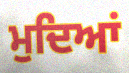
ਮੁਦਿਆਂ